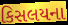
કિસલયના